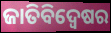
ଜାତିବିଦ୍ୱେଷର